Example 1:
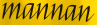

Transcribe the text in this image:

mannan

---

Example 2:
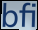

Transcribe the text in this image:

bfi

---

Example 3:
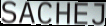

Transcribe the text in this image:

SACHEJ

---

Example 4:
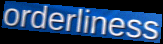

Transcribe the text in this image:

orderliness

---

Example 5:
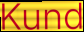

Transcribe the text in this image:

Kund